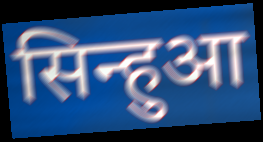
सिन्हुआ